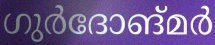
ഗുർദോങ്മർ